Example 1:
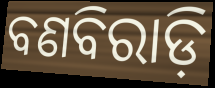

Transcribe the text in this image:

ବଣବିରାଡ଼ି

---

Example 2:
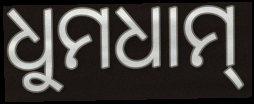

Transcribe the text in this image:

ଧୁମଧାମ୍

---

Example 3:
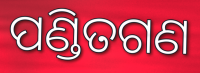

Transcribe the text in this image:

ପଣ୍ଡିତଗଣ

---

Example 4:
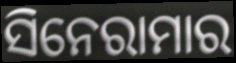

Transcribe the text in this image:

ସିନେରାମାର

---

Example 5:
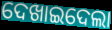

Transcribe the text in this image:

ଦେଖାଇଦେଲା